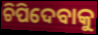
ଚିପିଦେବାକୁ